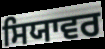
ਸਿਯਾਵਰ